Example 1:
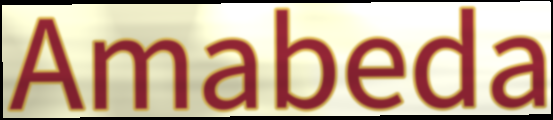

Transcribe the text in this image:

Amabeda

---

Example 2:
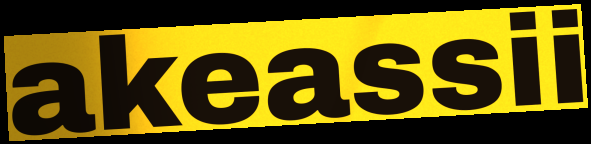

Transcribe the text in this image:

akeassii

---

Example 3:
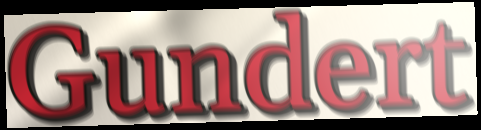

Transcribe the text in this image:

Gundert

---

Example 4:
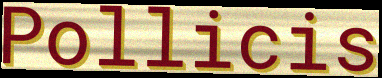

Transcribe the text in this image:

Pollicis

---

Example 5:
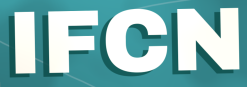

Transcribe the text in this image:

IFCN